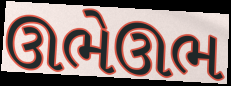
ઊભેઊભ